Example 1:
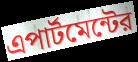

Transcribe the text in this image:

এপার্টমেন্টের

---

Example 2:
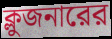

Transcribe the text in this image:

ক্লুজনারের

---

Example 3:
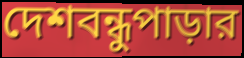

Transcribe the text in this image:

দেশবন্ধুপাড়ার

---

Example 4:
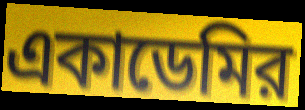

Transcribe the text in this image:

একাডেমির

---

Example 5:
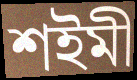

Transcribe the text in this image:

শইমী